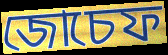
জোচেফ